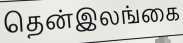
தென்இலங்கை